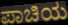
ಪಾಚಿಯ